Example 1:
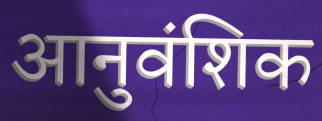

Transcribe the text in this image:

आनुवंशिक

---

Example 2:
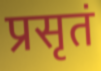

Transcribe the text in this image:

प्रसृतं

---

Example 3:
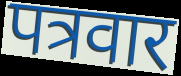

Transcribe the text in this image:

पत्रवार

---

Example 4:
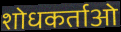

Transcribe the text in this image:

शोधकर्ताओ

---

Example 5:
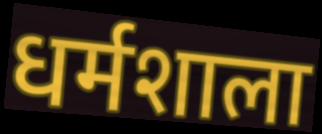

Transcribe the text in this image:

धर्मशाला